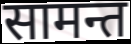
सामन्त